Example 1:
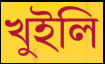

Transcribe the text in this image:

খুইলি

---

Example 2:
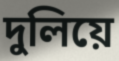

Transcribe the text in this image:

দুলিয়ে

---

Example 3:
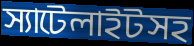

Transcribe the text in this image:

স্যাটেলাইটসহ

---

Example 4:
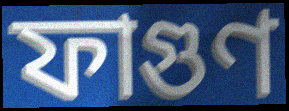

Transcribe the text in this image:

ফাগুণ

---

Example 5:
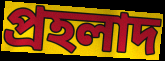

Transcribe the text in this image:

প্রহলাদ